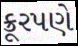
ક્રૂરપણે